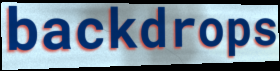
backdrops